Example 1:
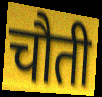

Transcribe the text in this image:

चौती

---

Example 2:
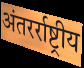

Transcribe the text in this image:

अंतरर्राष्ट्रीय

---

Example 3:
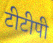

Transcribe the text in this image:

टीटीपी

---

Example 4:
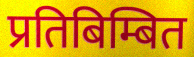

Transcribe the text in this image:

प्रतिबिम्बित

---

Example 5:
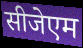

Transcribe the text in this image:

सीजेएम